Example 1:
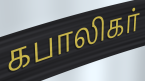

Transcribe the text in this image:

கபாலிகர்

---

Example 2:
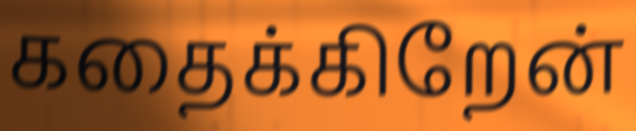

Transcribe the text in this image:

கதைக்கிறேன்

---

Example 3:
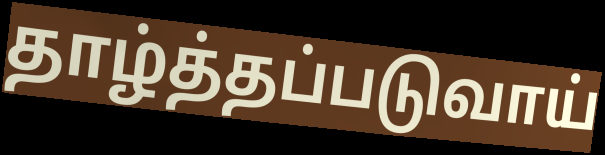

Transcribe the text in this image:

தாழ்த்தப்படுவாய்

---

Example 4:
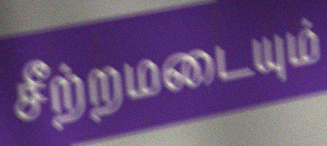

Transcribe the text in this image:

சீற்றமடையும்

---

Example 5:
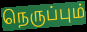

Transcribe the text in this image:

நெருப்பும்